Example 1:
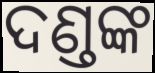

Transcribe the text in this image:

ଦଣ୍ଡଙ୍କ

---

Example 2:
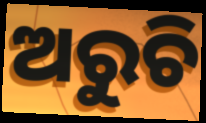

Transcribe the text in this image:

ଅରୁଚି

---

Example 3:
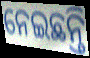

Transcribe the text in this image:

ନେଇଛନ୍ତି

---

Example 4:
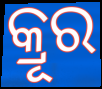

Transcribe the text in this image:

କ୍ରୂର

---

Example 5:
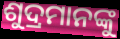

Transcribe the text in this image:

ଶୁଦ୍ରମାନଙ୍କୁ